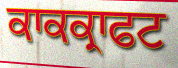
ਕਾਕਕ੍ਰਾਫਟ